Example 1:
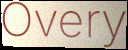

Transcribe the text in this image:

Overy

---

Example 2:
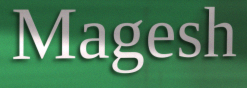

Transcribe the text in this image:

Magesh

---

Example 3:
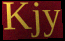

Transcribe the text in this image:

Kjy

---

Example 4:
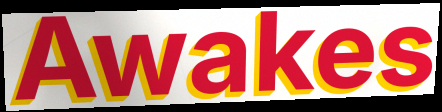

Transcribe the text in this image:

Awakes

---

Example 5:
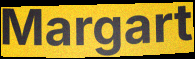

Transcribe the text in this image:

Margart